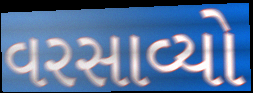
વરસાવ્યો